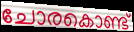
ചോരകൊണ്ട്